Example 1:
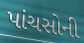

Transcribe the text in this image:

પાંચસોની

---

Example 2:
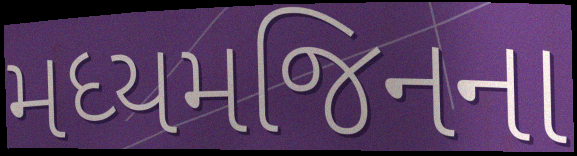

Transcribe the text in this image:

મધ્યમજિનના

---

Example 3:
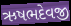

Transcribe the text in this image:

ઋષભદેવજી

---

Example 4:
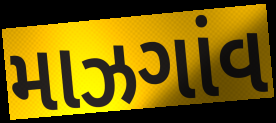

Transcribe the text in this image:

માઝગાંવ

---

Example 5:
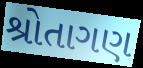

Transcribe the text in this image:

શ્રોતાગણ